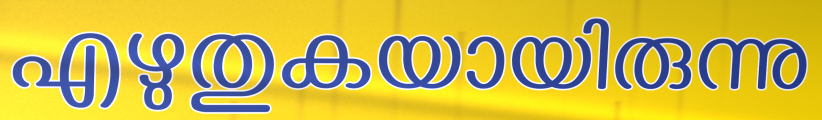
എഴുതുകയായിരുന്നു